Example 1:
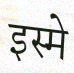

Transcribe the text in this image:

इस्मे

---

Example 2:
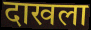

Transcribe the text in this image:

दाखला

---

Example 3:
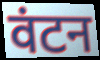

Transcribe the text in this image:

वंटन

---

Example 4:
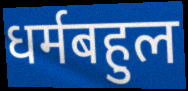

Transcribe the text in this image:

धर्मबहुल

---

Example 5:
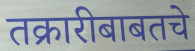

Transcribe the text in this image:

तक्रारीबाबतचे